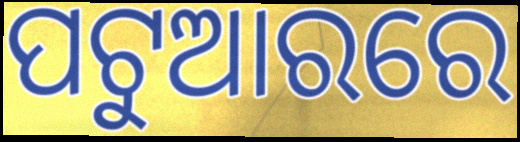
ପଟୁଆରରେ